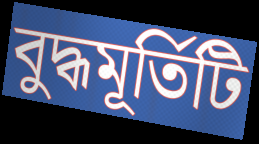
বুদ্ধমূর্তিটি